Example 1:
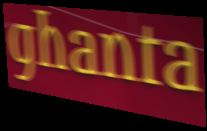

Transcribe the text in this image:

ghanta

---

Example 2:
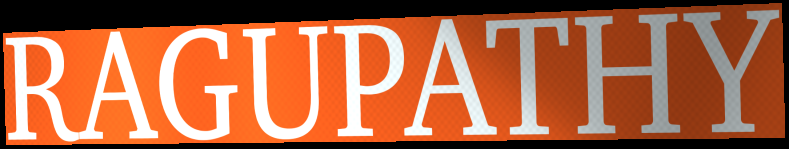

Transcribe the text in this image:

RAGUPATHY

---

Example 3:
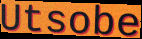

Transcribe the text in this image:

Utsobe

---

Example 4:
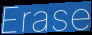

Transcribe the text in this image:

Erase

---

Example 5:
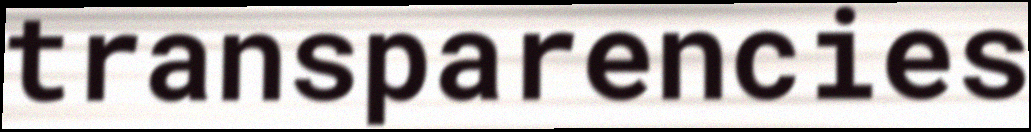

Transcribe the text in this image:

transparencies